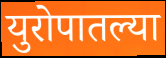
युरोपातल्या